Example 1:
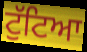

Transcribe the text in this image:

ਟੁੱਟਿਆ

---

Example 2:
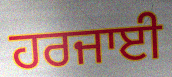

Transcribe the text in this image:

ਹਰਜਾਈ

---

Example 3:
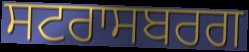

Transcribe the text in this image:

ਸਟਰਾਸਬਰਗ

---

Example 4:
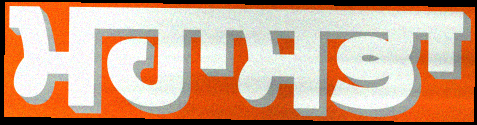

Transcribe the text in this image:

ਮਹਾਸਭਾ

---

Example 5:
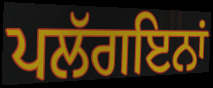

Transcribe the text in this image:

ਪਲੱਗਇਨਾਂ